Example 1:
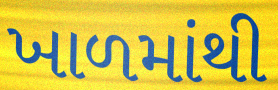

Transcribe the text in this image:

ખાળમાંથી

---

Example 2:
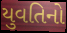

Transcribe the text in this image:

યુવતિનો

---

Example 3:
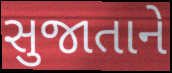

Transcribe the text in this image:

સુજાતાને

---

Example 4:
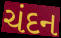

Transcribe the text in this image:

ચંદન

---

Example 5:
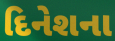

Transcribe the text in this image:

દિનેશના